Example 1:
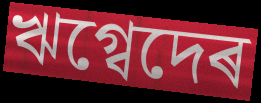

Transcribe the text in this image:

ঋগ্বেদেৰ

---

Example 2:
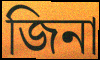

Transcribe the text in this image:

জিনা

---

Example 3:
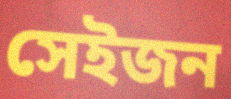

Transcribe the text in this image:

সেইজন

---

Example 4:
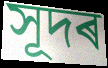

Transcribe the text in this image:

সূদৰ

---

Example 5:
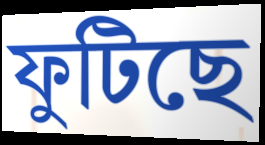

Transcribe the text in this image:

ফুটিছে